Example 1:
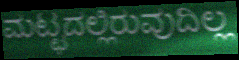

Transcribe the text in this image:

ಮಟ್ಟದಲ್ಲಿರುವುದಿಲ್ಲ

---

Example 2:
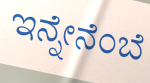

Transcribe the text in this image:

ಇನ್ನೇನೆಂಬೆ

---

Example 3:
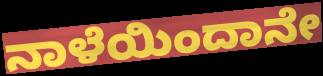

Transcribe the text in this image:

ನಾಳೆಯಿಂದಾನೇ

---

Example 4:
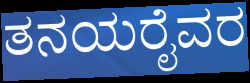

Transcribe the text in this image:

ತನಯರೈವರ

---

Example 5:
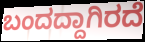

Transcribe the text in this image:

ಬಂದದ್ದಾಗಿರದೆ